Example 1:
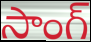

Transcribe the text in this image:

సాంగ్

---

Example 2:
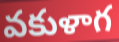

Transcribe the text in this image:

వకుళాగ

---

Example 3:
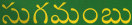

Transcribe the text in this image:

సుగమంబు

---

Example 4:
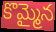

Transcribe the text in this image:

కొమ్మైన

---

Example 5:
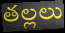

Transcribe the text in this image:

తల్లలు